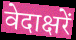
वेदाक्षरें